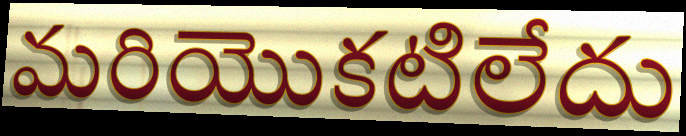
మరియొకటిలేదు